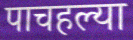
पाचहल्या